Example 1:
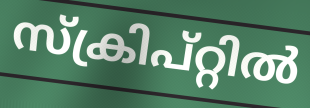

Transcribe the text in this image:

സ്ക്രിപ്റ്റിൽ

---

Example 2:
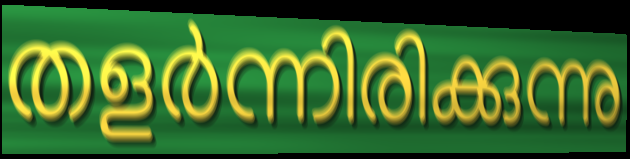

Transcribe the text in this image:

തളർന്നിരിക്കുന്നു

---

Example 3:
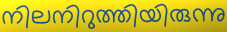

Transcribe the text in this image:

നിലനിറുത്തിയിരുന്നു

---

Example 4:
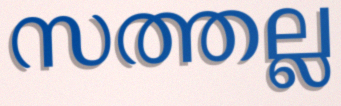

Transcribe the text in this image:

സത്തല്ല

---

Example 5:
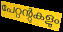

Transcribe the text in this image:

പേറ്റന്റുകളും